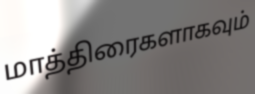
மாத்திரைகளாகவும்